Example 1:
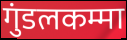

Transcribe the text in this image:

गुंडलकम्मा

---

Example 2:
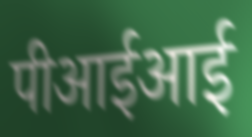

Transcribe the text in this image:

पीआईआई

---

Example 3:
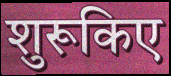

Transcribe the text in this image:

शुरूकिए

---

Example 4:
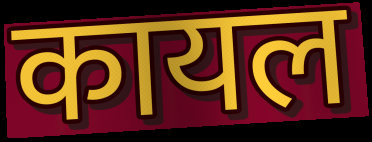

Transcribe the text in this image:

कायल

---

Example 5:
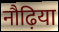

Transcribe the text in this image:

नौढ़िया